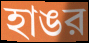
হাঙর